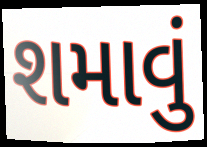
શમાવું